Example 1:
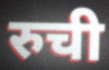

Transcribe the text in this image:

रुची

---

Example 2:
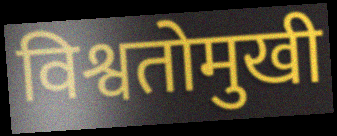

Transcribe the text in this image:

विश्वतोमुखी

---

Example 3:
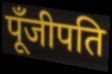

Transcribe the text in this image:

पूँजीपति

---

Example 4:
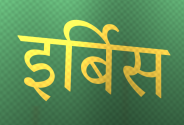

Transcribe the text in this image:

इर्बिस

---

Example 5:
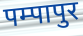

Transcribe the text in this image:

पम्पापुर